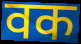
वक